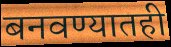
बनवण्यातही